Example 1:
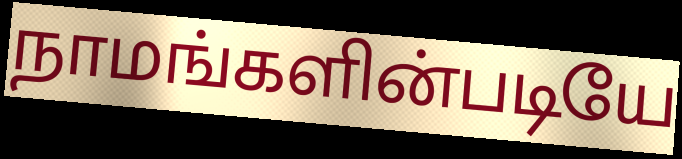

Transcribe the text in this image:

நாமங்களின்படியே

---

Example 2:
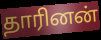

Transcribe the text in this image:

தாரினன்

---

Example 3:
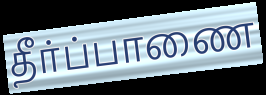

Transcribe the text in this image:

தீர்ப்பாணை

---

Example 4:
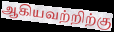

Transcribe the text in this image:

ஆகியவற்றிற்கு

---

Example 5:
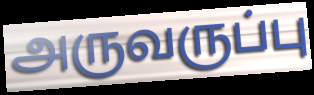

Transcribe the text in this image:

அருவருப்பு